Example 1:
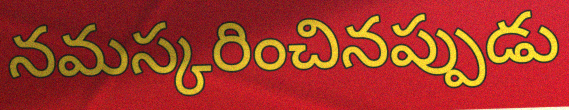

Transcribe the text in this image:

నమస్కరించినప్పుడు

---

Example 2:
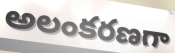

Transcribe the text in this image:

అలంకరణగా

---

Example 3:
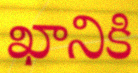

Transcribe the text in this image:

ఖానికి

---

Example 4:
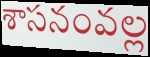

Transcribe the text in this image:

శాసనంవల్ల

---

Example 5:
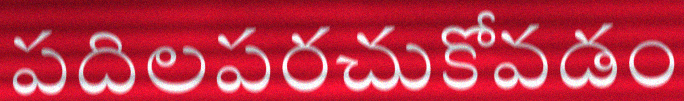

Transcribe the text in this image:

పదిలపరచుకోవడం